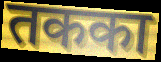
तकका